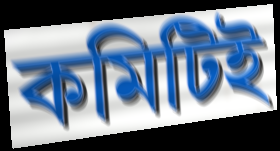
কমিটিই